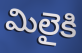
మిలైకి